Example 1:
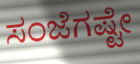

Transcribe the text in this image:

ಸಂಜೆಗಷ್ಟೇ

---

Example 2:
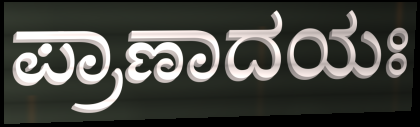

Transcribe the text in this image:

ಪ್ರಾಣಾದಯಃ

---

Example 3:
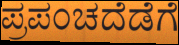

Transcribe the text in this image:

ಪ್ರಪಂಚದೆಡೆಗೆ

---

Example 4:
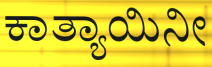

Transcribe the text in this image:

ಕಾತ್ಯಾಯಿನೀ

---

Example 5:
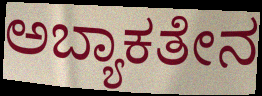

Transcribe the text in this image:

ಅಬ್ಯಾಕತೇನ